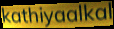
kathiyaalkal